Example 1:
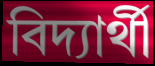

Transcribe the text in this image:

বিদ্যার্থী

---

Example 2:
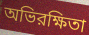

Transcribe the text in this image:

অভিরক্ষিতা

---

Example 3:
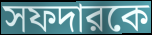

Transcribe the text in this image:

সফদারকে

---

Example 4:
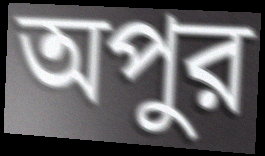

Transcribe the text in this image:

অপুর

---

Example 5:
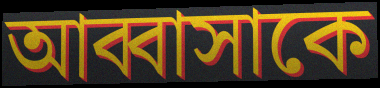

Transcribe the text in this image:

আব্বাসাকে